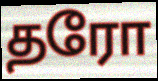
தரோ